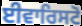
ਈਵਾਰਿਸਟੋ